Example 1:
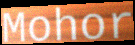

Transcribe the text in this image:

Mohor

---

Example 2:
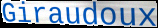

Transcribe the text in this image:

Giraudoux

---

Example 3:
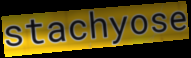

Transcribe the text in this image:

stachyose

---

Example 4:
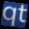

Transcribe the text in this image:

qt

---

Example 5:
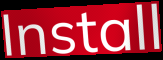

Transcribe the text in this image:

Install